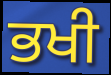
ਭਖੀ